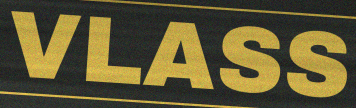
VLASS